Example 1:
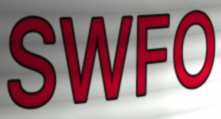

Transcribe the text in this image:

SWFO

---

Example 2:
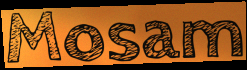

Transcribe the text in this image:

Mosam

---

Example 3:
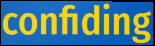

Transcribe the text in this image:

confiding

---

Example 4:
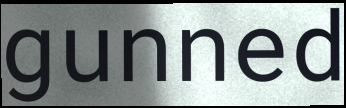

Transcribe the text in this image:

gunned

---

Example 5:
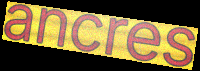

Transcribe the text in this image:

ancres